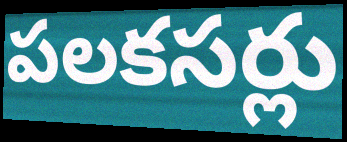
పలకసర్లు